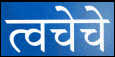
त्वचेचे